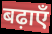
बढ़ाएँ